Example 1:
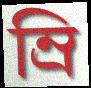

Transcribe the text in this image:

ম্রি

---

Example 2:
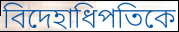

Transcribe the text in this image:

বিদেহাধিপতিকে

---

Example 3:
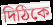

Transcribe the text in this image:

দিঠিকে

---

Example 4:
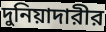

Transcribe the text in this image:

দুনিয়াদারীর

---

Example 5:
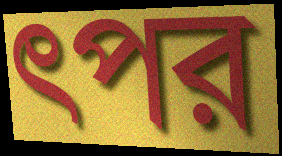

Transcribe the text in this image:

ৎপর